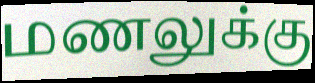
மணலுக்கு